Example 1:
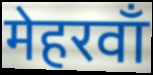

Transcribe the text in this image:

मेहरवाँ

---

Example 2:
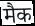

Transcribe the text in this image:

मैक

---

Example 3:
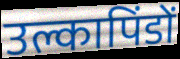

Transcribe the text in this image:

उल्कापिंडों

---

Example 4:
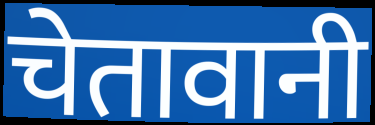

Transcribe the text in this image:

चेतावानी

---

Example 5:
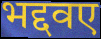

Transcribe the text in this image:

भद्दवए